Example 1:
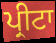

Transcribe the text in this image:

ਪ੍ਰੀਟਾ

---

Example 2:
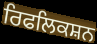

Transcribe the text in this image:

ਰਿਫਲਿਕਸ਼ਨ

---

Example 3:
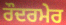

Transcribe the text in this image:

ਰੌਦਰਮੇਰ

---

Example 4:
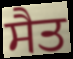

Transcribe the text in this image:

ਸੈਤ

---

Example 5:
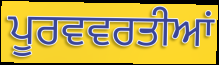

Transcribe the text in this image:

ਪੂਰਵਵਰਤੀਆਂ